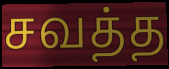
சவத்த